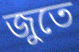
জুতে